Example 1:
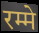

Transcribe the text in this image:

रम्मे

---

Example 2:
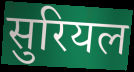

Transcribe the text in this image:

सुरियल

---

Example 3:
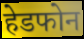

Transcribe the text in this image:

हेडफोन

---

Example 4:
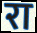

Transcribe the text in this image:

रा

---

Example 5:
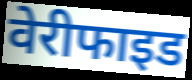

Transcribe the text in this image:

वेरीफाइड